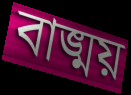
বাঙ্ময়